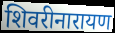
शिवरीनारायण